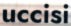
uccisi